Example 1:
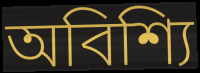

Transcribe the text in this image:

অবিশ্যি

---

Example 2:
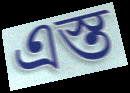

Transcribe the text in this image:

এস্ত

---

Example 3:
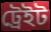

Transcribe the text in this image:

ট্রেইট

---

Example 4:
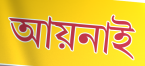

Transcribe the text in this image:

আয়নাই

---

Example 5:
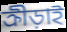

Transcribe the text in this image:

ক্রীড়াই